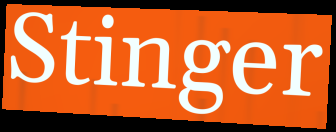
Stinger